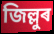
জিল্লুৰ